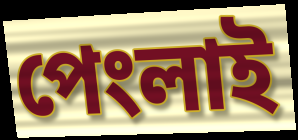
পেংলাই